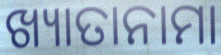
ଖ୍ୟାତାନାମା